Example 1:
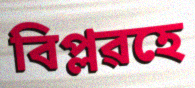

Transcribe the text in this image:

বিপ্লৱহে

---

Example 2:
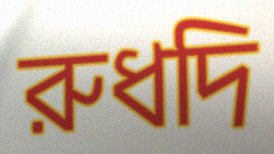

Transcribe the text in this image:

ৰুধদি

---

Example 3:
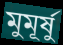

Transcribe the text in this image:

মুমূৰ্ষু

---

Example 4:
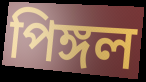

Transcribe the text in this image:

পিঙ্গল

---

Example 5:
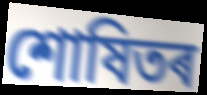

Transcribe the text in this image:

শোষিতৰ